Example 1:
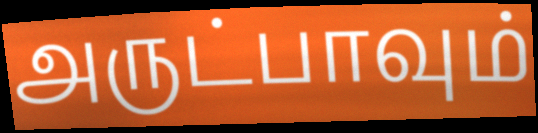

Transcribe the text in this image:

அருட்பாவும்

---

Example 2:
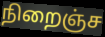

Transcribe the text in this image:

நிறைஞ்ச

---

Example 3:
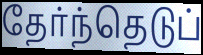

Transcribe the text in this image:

தேர்ந்தெடுப்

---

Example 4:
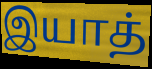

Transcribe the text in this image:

இயாத்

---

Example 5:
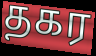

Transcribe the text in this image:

தகர